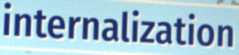
internalization